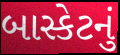
બાસ્કેટનું